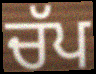
ਚੱਪ